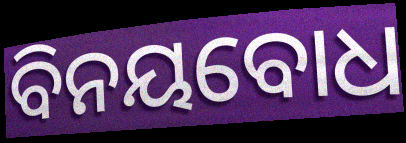
ବିନୟବୋଧ